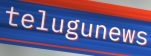
telugunews